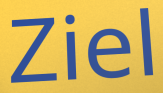
Ziel